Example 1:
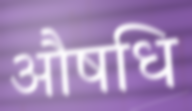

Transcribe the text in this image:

औषधि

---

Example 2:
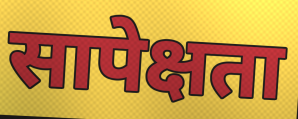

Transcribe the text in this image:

सापेक्षता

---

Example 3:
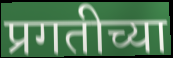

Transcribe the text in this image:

प्रगतीच्या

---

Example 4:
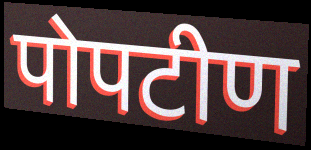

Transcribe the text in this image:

पोपटीण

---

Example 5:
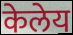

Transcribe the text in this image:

केलेय